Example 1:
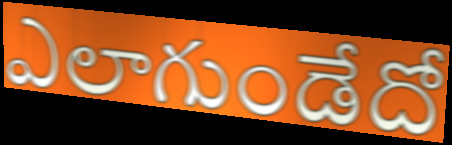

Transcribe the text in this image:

ఎలాగుండేదో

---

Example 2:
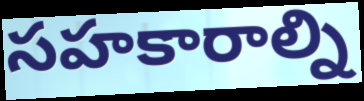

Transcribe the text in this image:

సహకారాల్ని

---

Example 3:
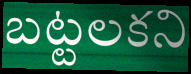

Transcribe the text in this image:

బట్టలకని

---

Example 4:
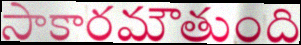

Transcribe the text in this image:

సాకారమౌతుంది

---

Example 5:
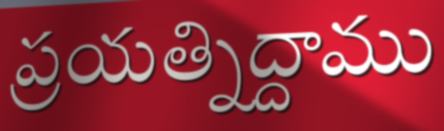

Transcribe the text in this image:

ప్రయత్నిద్దాము